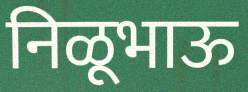
निळूभाऊ